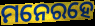
ମନେରହେ